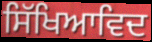
ਸਿੱਖਿਆਵਿਦ